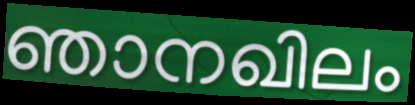
ഞാനഖിലം